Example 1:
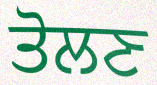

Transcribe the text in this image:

ਤੋਲਣ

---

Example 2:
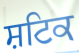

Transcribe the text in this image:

ਸ਼ਟਿਕ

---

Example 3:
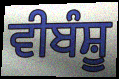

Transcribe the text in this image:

ਵੀਬੰਸ਼ੂ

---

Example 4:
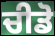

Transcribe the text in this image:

ਚੀਡੋ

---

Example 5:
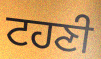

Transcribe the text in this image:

ਟਹਣੀ